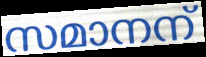
സമാനന്